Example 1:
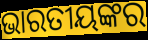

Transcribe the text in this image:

ଭାରତୀୟଙ୍କର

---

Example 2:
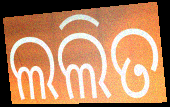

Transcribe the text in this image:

ଲଲିତ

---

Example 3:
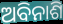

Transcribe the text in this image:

ଅବିନାଶି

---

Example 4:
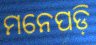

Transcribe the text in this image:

ମନେପଡ଼ି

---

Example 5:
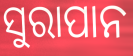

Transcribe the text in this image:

ସୁରାପାନ